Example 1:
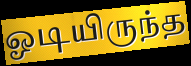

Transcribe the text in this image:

ஓடியிருந்த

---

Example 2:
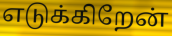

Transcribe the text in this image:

எடுக்கிறேன்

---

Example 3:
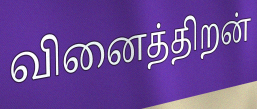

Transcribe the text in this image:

வினைத்திறன்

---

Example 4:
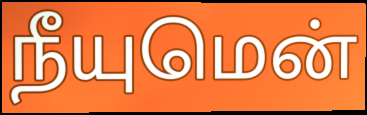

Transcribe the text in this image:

நீயுமென்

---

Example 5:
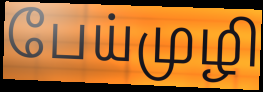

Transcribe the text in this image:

பேய்முழி